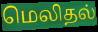
மெலிதல்